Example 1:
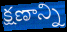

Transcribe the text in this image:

క్షణాన్ని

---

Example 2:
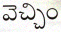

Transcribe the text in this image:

వెచ్చిం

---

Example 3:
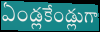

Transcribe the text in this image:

ఏండ్లకేండ్లుగా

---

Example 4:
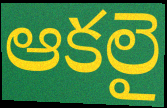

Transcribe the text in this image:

ఆకలై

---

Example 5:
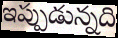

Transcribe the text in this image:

ఇప్పుడున్నది